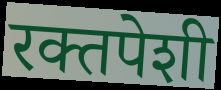
रक्तपेशी